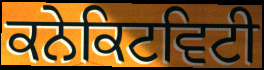
ਕਨੇਕਿਟਵਿਟੀ